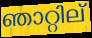
ഞാറ്റില്